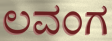
ಲವಂಗ